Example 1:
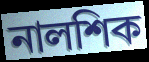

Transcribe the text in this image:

নালশিক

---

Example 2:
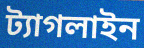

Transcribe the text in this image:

ট্যাগলাইন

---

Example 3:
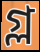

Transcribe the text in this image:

গ্ল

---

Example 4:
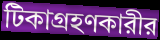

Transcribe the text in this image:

টিকাগ্রহণকারীর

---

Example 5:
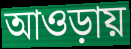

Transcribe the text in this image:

আওড়ায়